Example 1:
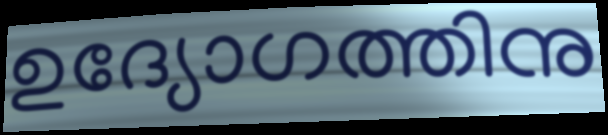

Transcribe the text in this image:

ഉദ്യോഗത്തിനു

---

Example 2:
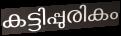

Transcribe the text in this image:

കട്ടിപ്പുരികം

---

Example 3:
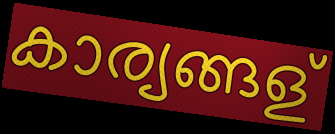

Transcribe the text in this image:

കാര്യങ്ങള്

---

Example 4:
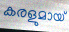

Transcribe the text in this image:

കരളുമായ്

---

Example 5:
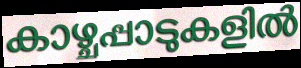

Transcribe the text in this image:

കാഴ്ചപ്പാടുകളിൽ